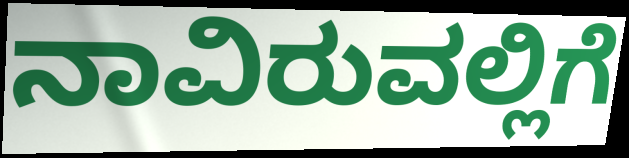
ನಾವಿರುವಲ್ಲಿಗೆ